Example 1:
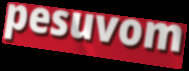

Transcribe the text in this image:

pesuvom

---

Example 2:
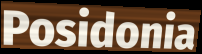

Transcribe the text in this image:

Posidonia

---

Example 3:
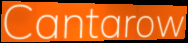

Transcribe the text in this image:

Cantarow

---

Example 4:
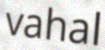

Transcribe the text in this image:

vahal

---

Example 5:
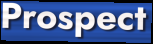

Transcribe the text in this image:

Prospect